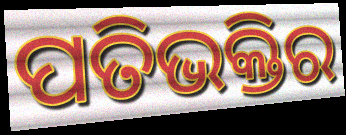
ପତିଭକ୍ତିର